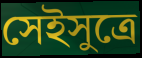
সেইসুত্রে